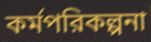
কর্মপরিকল্পনা